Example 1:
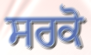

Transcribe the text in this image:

ਸਰਕੋ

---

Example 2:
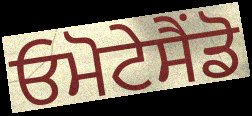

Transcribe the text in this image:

ਓਮੋਟੇਸੈਂਡੋ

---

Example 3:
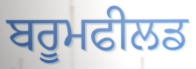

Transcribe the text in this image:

ਬਰੂਮਫੀਲਡ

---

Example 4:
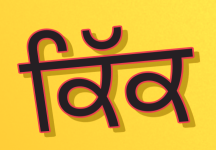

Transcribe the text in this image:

ਕਿੱਕ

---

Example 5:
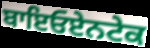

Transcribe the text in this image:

ਬਾਇਓਏਨਟੇਕ